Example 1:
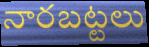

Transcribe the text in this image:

నారబట్టలు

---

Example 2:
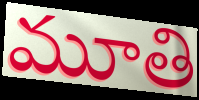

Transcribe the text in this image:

మూతి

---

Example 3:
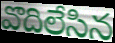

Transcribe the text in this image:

వొదిలేసిన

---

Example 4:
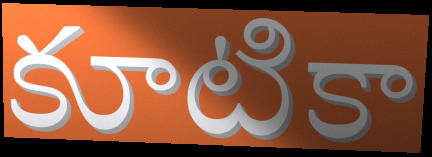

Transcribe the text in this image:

కూటికా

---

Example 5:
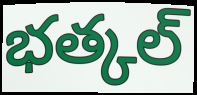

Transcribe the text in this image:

భత్కల్